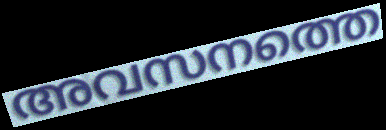
അവസനത്തെ